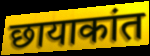
छायाकांत